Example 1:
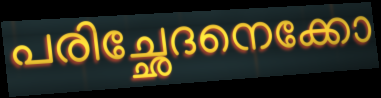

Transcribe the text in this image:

പരിച്ഛേദനെക്കോ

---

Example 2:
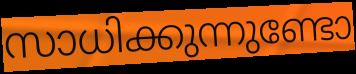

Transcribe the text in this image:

സാധിക്കുന്നുണ്ടോ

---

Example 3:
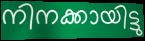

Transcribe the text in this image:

നിനക്കായിട്ടു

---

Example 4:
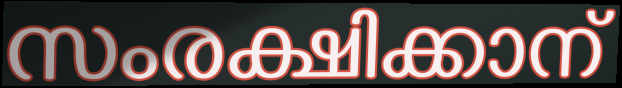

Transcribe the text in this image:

സംരക്ഷിക്കാന്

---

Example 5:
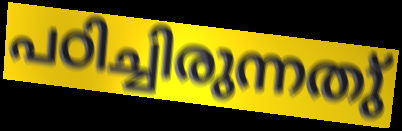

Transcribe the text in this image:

പഠിച്ചിരുന്നതു്